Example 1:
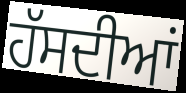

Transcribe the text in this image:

ਹੱਸਦੀਆਂ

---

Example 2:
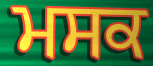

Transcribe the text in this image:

ਮਸਕ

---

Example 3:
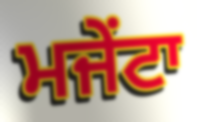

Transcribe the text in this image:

ਮਜੇਂਟਾ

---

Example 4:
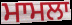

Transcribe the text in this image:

ਮਾਮਲਾ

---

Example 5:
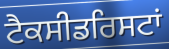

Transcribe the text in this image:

ਟੈਕਸੀਡਰਿਸਟਾਂ